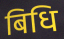
बिधि